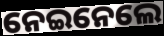
ନେଇନେଲେ